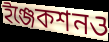
ইঞ্জেকশনও